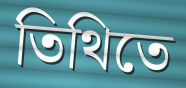
তিথিতে